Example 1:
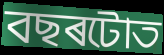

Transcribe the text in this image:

বছৰটোত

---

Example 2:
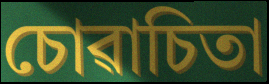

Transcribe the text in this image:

চোৱাচিতা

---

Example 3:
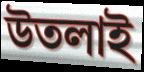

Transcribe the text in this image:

উতলাই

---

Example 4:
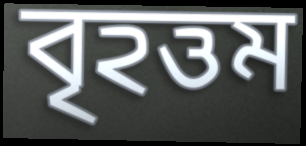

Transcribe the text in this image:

বৃহত্তম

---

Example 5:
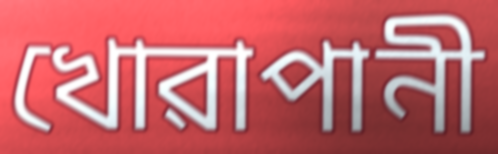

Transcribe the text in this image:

খোৱাপানী